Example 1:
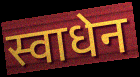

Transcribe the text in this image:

स्वाधेन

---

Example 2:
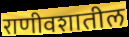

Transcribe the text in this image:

राणीवशातील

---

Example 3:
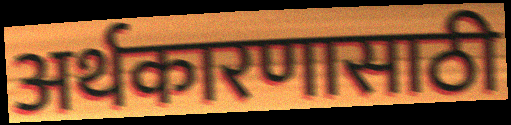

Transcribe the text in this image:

अर्थकारणासाठी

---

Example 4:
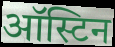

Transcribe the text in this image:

ऑस्टिन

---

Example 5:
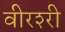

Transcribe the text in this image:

वीरश्री